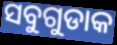
ସବୁଗୁଡାକ